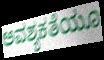
ಅವಶ್ಯಕತೆಯೂ